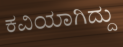
ಕವಿಯಾಗಿದ್ದು